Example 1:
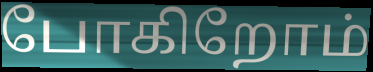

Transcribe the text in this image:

போகிறோம்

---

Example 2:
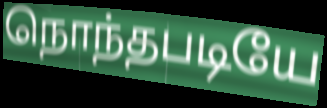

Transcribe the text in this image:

நொந்தபடியே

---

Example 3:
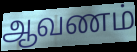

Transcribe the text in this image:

ஆவணம்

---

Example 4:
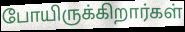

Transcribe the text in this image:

போயிருக்கிறார்கள்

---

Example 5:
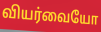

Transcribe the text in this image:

வியர்வையோ